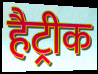
हैट्रीक